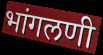
भांगलणी